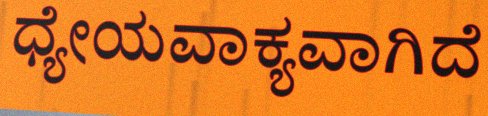
ಧ್ಯೇಯವಾಕ್ಯವಾಗಿದೆ